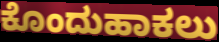
ಕೊಂದುಹಾಕಲು